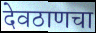
देवठाणचा